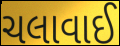
ચલાવાઈ